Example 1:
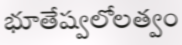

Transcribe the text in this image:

భూతేష్వలోలత్వం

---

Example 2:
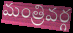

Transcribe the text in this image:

మంత్రివర్గ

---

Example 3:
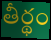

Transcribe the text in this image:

తీర్థం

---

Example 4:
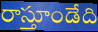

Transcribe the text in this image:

రాస్తూండేది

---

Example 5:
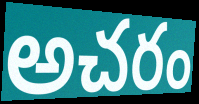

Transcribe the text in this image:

అచరం